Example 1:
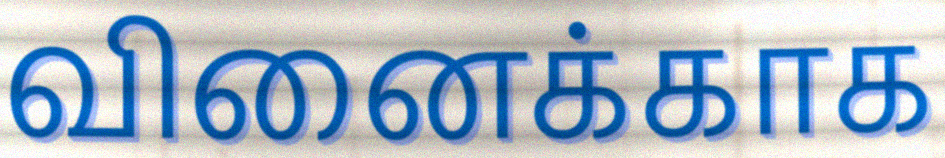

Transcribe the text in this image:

வினைக்காக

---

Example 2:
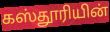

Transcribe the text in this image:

கஸ்தூரியின்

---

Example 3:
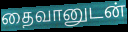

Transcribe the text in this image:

தைவானுடன்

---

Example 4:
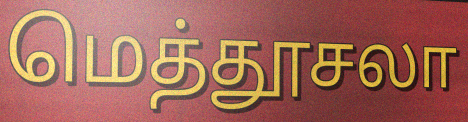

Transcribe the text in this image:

மெத்தூசலா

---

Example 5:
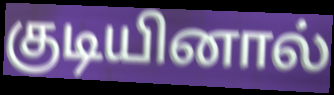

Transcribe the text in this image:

குடியினால்